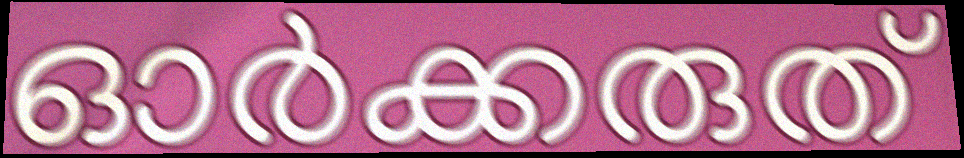
ഓർക്കരുത്